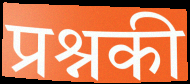
प्रश्नकी